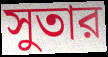
সুতার